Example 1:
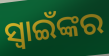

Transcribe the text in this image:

ସ୍ୱାଇଁଙ୍କର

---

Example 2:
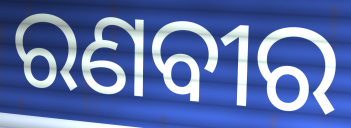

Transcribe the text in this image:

ରଣବୀର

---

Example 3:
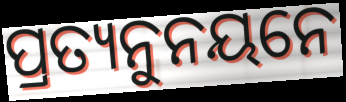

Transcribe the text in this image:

ପ୍ରତ୍ୟନୁନୟନେ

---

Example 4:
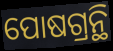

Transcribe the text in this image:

ପୋଷଗ୍ରନ୍ଥି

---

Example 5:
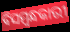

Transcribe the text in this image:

ବିସମ୍ବନ୍ଧକାରୀ